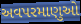
અવપરમાણુઓ